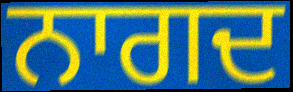
ਨਾਗਦ